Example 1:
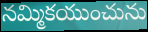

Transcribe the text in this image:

నమ్మికయుంచును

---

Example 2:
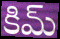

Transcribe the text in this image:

కిమ్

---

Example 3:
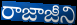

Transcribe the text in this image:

రాజాజీని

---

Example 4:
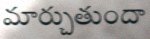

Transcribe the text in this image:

మార్చుతుందా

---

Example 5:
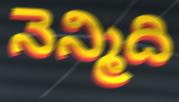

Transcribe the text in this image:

నెన్మిది